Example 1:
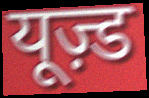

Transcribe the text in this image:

यूज़्ड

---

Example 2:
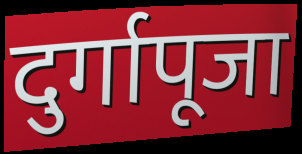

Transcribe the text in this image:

दुर्गापूजा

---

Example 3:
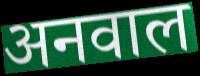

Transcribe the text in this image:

अनवाल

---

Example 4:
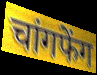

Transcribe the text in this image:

चांगफेंग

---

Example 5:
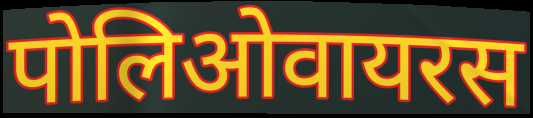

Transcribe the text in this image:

पोलिओवायरस